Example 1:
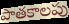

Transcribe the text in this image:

పాతకాలపు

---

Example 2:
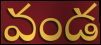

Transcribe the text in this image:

వండ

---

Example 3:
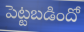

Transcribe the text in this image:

పెట్టబడిందో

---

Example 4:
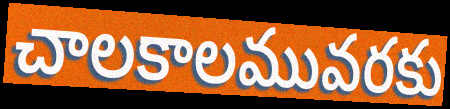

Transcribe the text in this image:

చాలకాలమువరకు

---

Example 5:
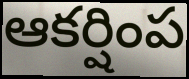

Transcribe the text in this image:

ఆకర్షింప